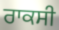
ਰਾਕਸੀ